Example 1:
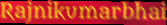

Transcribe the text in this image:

Rajnikumarbhai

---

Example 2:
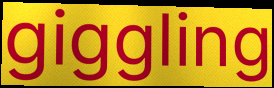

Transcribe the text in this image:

giggling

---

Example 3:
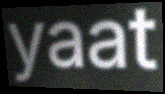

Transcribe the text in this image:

yaat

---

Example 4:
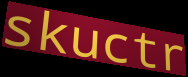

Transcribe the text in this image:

skuctr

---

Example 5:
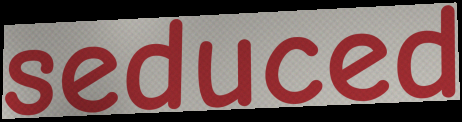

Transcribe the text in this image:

seduced